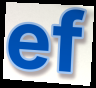
ef